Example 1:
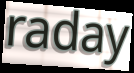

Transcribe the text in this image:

raday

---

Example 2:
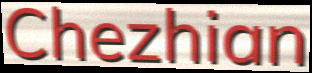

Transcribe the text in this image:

Chezhian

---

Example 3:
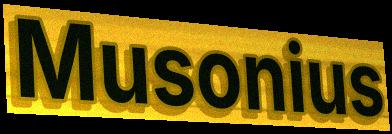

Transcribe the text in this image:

Musonius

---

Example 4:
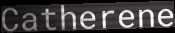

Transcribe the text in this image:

Catherene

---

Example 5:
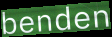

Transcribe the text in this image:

benden